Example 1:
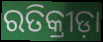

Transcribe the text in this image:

ରତିକ୍ରୀଡ଼ା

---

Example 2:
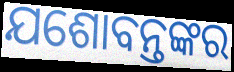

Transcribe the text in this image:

ଯଶୋବନ୍ତଙ୍କର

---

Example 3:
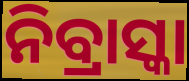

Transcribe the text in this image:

ନିବ୍ରାସ୍କା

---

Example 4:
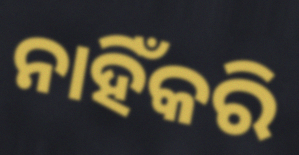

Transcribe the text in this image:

ନାହିଁକରି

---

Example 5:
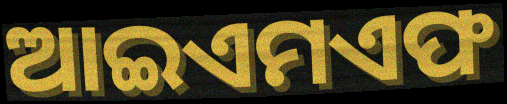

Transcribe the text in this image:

ଆଇଏମଏଫ